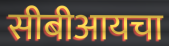
सीबीआयचा